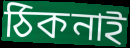
ঠিকনাই